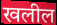
खलील